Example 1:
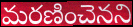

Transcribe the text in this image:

మరణించెనని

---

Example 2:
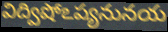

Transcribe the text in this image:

విద్విషోఽప్యనునయ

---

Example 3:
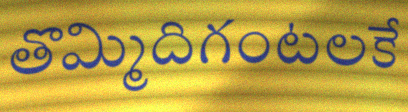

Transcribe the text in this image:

తొమ్మిదిగంటలకే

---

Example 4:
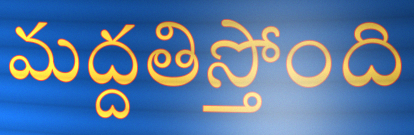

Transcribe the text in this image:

మద్దతిస్తోంది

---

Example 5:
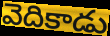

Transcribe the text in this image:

వెదికాడు